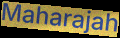
Maharajah